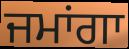
ਜਮਾਂਗਾ